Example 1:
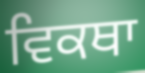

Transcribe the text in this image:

ਵਿਕਥਾ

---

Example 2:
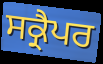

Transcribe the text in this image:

ਸਕ੍ਰੈਪਰ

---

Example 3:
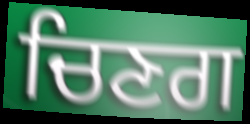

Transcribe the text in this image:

ਚਿਣਗ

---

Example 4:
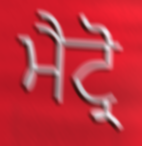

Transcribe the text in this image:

ਮੈਟ੍ਰੋ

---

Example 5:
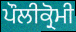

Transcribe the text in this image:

ਪੌਲੀਕ੍ਰੋਮੀ